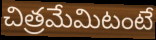
చిత్రమేమిటంటే